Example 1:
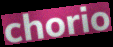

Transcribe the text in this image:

chorio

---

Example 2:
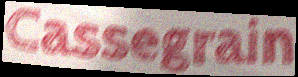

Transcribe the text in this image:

Cassegrain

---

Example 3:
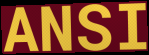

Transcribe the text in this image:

ANSI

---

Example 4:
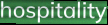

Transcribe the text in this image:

hospitality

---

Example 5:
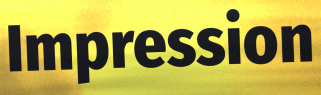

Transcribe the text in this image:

Impression